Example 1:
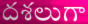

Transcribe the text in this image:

దశలుగా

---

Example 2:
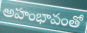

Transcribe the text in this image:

అహంభావంతో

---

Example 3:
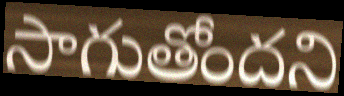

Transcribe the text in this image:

సాగుతోందని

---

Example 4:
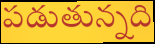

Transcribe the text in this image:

పడుతున్నది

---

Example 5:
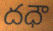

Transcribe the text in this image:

దధౌ